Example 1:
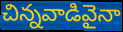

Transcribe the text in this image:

చిన్నవాడివైనా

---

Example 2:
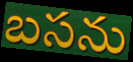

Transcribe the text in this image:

బసను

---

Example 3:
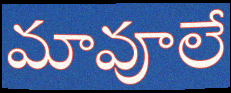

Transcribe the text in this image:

మావూలే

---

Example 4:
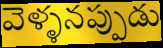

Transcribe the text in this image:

వెళ్ళనప్పుడు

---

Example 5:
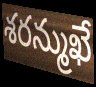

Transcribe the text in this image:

శరన్ముఖే